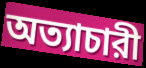
অত্যাচারী